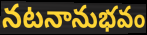
నటనానుభవం